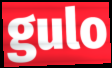
gulo